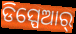
ଡିସ୍ପେଆର୍